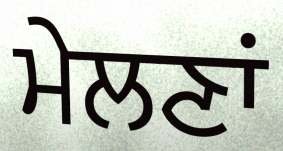
ਮੇਲਣਾਂ